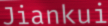
Jiankui